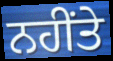
ਨਹੀਂਤੇ